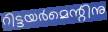
റിട്ടയർമെന്റിനു